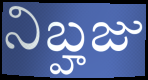
నిబ్హజు